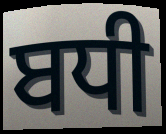
ਬਧੀ